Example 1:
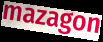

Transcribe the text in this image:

mazagon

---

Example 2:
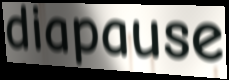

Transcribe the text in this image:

diapause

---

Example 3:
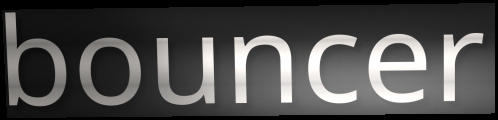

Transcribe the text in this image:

bouncer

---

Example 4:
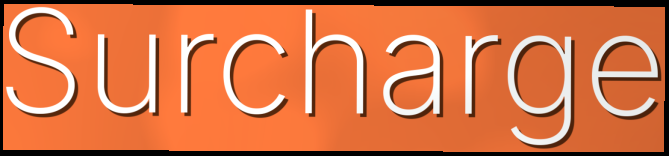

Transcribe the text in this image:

Surcharge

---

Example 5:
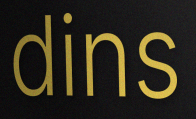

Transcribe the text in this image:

dins